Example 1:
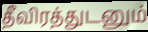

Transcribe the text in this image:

தீவிரத்துடனும்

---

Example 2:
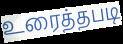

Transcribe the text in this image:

உரைத்தபடி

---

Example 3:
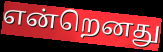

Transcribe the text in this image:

என்றெனது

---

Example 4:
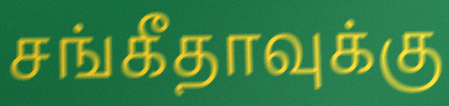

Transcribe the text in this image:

சங்கீதாவுக்கு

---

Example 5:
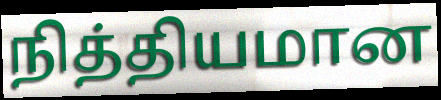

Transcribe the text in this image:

நித்தியமான